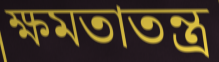
ক্ষমতাতন্ত্র